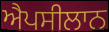
ਐਪਸੀਲਾਨ